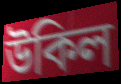
উকিল